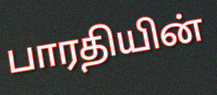
பாரதியின்